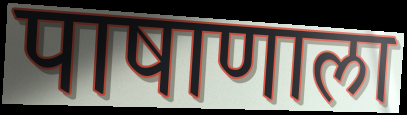
पाषाणाला